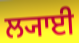
ਲ੍ਯਾਈ